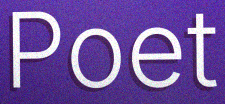
Poet